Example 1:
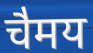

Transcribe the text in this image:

चैमय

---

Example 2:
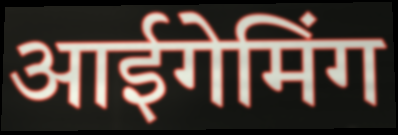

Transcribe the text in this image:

आईगेमिंग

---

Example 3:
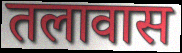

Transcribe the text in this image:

तलावास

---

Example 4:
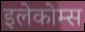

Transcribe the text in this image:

इलेकोम्स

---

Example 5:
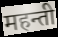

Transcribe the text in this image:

महन्ती